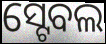
ସ୍ଟେବଲ